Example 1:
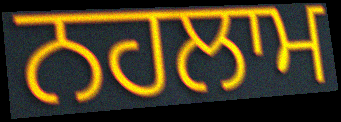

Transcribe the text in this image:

ਨਹਲਾਮ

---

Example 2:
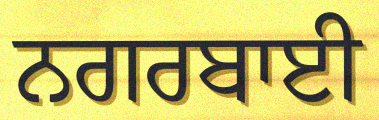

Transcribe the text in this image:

ਨਗਰਬਾਈ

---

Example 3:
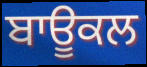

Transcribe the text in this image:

ਬਾਊਕਲ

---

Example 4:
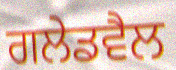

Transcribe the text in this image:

ਗਲੇਡਵੈਲ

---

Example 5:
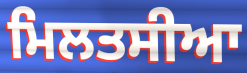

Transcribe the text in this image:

ਮਿਲਤਸੀਆ